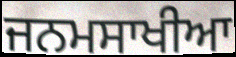
ਜਨਮਸਾਖੀਆ